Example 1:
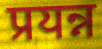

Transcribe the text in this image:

प्रयन्न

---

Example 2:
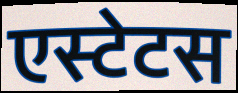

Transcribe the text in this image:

एस्टेटस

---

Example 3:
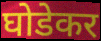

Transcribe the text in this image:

घोडेकर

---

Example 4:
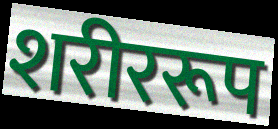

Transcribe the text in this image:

शरीररूप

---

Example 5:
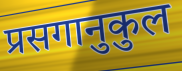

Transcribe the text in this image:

प्रसगानुकुल